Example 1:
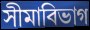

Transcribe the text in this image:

সীমাবিভাগ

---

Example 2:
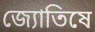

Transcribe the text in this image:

জ্যোতিষে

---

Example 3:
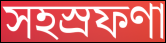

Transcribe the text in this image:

সহস্রফণা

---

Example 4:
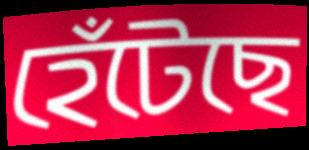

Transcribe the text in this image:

হেঁটেছে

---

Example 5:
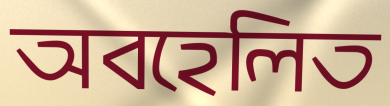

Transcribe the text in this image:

অবহেলিত